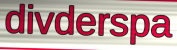
divderspa